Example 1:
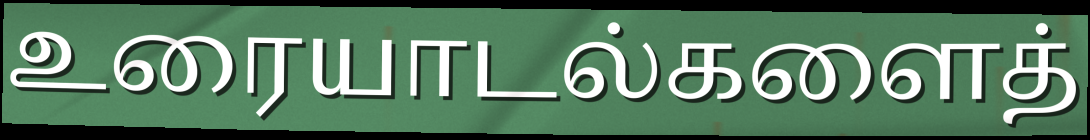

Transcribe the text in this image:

உரையாடல்களைத்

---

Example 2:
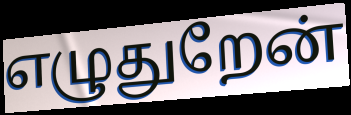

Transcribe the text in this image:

எழுதுறேன்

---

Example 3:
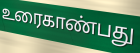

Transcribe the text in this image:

உரைகாண்பது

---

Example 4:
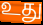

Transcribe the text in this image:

உது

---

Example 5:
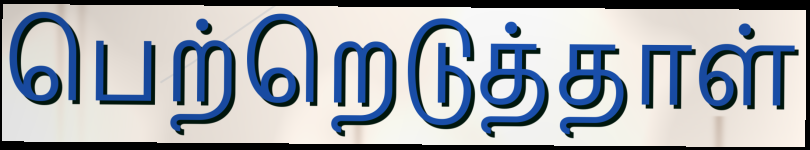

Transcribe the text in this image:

பெற்றெடுத்தாள்